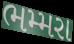
ભમ્મરા